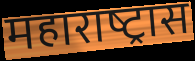
महाराष्ट्रास